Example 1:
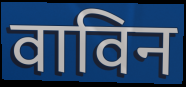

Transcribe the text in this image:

वाविन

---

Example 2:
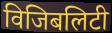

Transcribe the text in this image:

विजिबलिटी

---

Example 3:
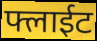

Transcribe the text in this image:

फ्लाईट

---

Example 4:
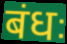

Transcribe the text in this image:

बंधः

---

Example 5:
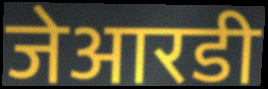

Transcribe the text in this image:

जेआरडी